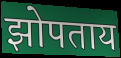
झोपताय